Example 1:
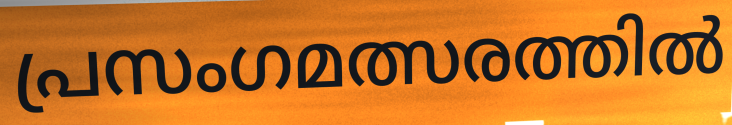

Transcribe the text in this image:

പ്രസംഗമത്സരത്തിൽ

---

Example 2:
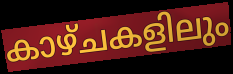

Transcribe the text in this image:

കാഴ്ചകളിലും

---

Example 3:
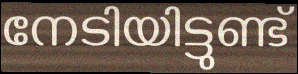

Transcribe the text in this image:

നേടിയിട്ടുണ്ട്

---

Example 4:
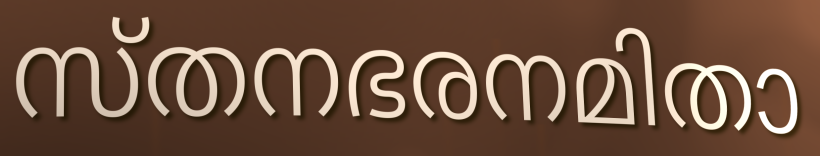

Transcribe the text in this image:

സ്തനഭരനമിതാ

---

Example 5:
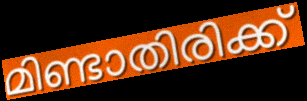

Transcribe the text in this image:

മിണ്ടാതിരിക്ക്